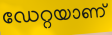
ഡേറ്റയാണ്